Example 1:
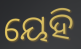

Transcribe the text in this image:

ୟେହି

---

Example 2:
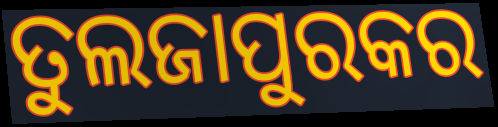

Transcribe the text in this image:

ତୁଲଜାପୁରକର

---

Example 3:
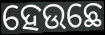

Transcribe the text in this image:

ହେଉଛେ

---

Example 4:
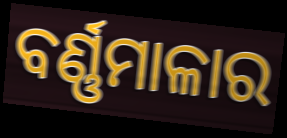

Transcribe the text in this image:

ବର୍ଣ୍ଣମାଳାର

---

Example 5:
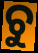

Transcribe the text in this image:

ଚୁ